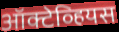
ऑक्टेव्हियस